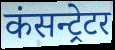
कंसन्ट्रेटर